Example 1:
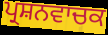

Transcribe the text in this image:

ਪ੍ਰਸ਼ਨਵਾਚਕ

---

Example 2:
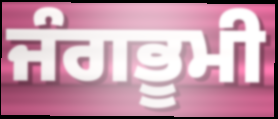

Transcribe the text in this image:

ਜੰਗਭੂਮੀ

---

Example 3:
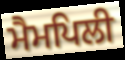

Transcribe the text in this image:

ਮੈਮਪਿਲੀ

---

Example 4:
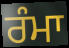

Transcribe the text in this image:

ਰੰਮਾ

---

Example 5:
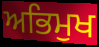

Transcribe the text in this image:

ਅਭਿਮੁਖ